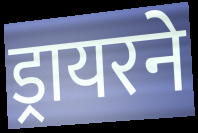
ड्रायरने